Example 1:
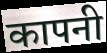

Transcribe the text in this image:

कापनी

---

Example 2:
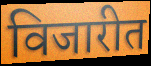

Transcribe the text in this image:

विजारीत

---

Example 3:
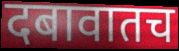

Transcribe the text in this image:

दबावातच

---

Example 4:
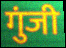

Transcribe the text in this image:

गुंजी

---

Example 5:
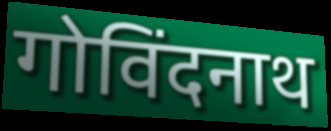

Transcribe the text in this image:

गोविंदनाथ